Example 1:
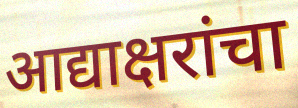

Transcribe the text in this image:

आद्याक्षरांचा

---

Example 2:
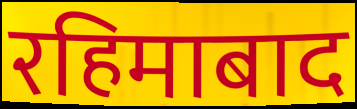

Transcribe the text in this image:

रहिमाबाद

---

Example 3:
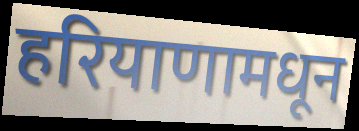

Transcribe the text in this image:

हरियाणामधून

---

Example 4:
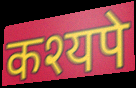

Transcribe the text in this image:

कश्यपे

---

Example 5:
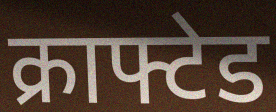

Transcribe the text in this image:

क्राफ्टेड